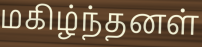
மகிழ்ந்தனள்